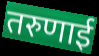
तरुणाई